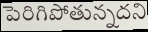
పెరిగిపోతున్నదని